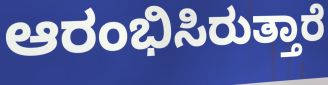
ಆರಂಭಿಸಿರುತ್ತಾರೆ